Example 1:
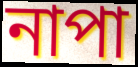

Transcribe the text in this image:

নাপা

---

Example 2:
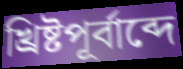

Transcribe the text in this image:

খ্রিষ্টপূর্বাব্দে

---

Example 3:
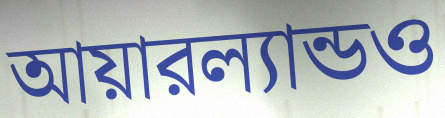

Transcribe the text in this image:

আয়ারল্যান্ডও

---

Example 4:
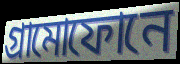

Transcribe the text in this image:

গ্রামোফোনে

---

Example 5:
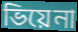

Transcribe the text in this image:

ভিয়েনা